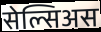
सेल्सिअस